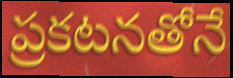
ప్రకటనతోనే